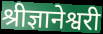
श्रीज्ञानेश्वरी